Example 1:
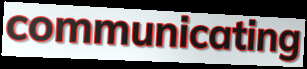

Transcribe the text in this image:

communicating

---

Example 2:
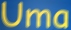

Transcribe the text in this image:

Uma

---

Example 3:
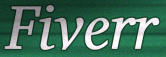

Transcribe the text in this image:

Fiverr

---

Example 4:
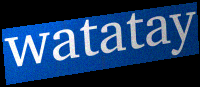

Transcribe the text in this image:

watatay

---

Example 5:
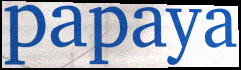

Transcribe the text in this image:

papaya